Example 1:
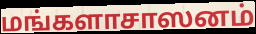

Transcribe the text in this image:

மங்களாசாஸனம்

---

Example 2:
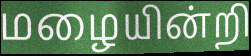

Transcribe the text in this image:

மழையின்றி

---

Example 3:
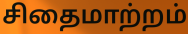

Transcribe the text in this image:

சிதைமாற்றம்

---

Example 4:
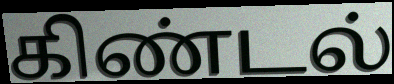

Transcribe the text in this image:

கிண்டல்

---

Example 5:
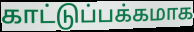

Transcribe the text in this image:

காட்டுப்பக்கமாக